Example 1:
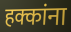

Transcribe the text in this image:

हक्कांना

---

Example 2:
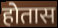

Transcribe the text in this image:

होतास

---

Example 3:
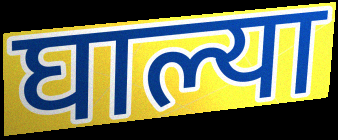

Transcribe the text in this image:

घाल्या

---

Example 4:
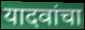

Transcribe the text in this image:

यादवांचा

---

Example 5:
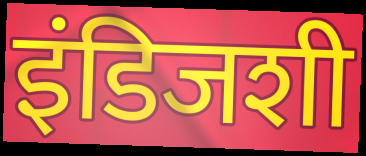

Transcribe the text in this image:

इंडिजशी